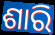
ଶାରି